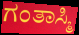
ಗಂತಾಸ್ಮಿ